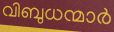
വിബുധന്മാർ